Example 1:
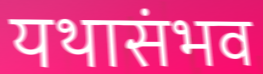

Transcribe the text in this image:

यथासंभव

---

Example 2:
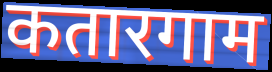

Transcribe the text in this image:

कतारगाम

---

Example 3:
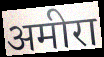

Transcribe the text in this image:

अमीरा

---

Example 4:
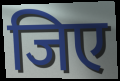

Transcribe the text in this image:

जिए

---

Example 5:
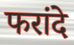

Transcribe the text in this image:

फरांदे